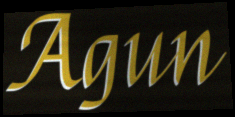
Agun